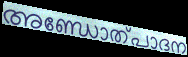
അണ്ഡോത്പാദന